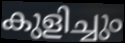
കുളിച്ചും